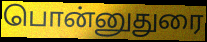
பொன்னுதுரை